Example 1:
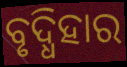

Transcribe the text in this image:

ବୃଦ୍ଧିହାର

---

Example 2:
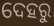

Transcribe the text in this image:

ଦେହରୁ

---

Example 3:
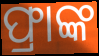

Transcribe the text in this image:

ଫ୍ରାଙ୍କ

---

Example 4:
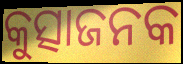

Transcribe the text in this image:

କୁତ୍ସାଜନକ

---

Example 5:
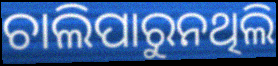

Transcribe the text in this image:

ଚାଲିପାରୁନଥିଲି